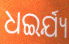
ଧଇର୍ଯ୍ୟ